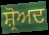
ਸ਼੍ਰੋਅਦ